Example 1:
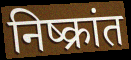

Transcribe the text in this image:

निष्क्रांत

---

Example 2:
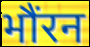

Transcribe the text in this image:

भौंरन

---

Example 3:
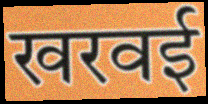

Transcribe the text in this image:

खरवई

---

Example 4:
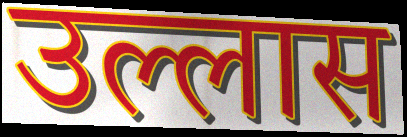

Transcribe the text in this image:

उल्‍लास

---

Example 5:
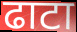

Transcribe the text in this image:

ढाटा